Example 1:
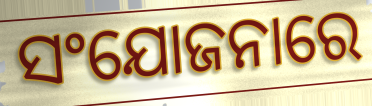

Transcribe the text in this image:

ସଂଯୋଜନାରେ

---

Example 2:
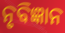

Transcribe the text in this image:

ନୃବିଜ୍ଞାନ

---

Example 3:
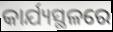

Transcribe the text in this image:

କାର୍ଯ୍ୟସ୍ଥଳରେ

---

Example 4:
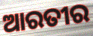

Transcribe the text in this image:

ଆରତୀର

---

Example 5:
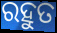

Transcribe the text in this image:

ରହୁତ